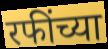
रफींच्या